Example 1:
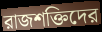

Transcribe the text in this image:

রাজশক্তিদের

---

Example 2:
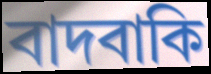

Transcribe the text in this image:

বাদবাকি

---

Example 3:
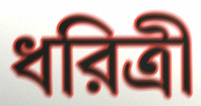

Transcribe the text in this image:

ধরিত্রী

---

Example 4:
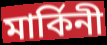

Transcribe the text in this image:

মার্কিনী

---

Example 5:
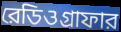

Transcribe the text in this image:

রেডিওগ্রাফার